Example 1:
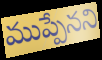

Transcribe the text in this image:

ముప్పేనని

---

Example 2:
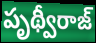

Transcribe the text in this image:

పృథ్వీరాజ్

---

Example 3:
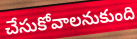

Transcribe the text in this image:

చేసుకోవాలనుకుంది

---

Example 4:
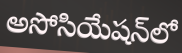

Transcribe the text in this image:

అసోసియేషన్‌లో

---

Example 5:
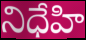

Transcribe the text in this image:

నిధేహి